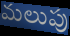
మలుపు